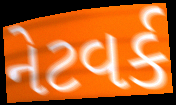
નેટવર્ક